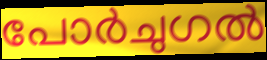
പോർചുഗൽ